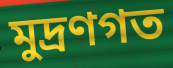
মুদ্রণগত